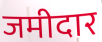
जमीदार